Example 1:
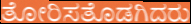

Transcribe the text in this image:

ತೋರಿಸತೊಡಗಿದರು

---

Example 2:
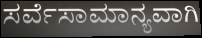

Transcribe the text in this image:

ಸರ್ವೆಸಾಮಾನ್ಯವಾಗಿ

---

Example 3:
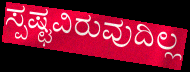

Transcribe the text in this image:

ಸ್ಪಷ್ಟವಿರುವುದಿಲ್ಲ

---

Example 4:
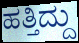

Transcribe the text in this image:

ಹತ್ತಿದ್ದು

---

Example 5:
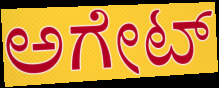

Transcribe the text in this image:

ಅಗೇಟ್